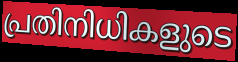
പ്രതിനിധികളുടെ